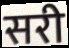
सरी